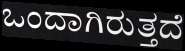
ಒಂದಾಗಿರುತ್ತದೆ